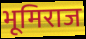
भूमिराज